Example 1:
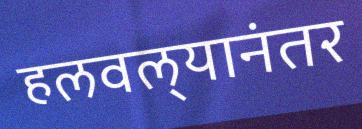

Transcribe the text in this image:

हलवल्यानंतर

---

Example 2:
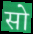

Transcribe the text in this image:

सो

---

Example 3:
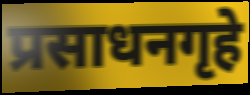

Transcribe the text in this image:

प्रसाधनगृहे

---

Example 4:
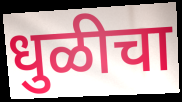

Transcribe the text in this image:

धुळीचा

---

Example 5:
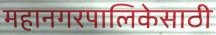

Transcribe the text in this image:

महानगरपालिकेसाठी